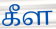
கீள